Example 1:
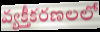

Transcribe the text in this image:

వ్యక్తీకరణలలో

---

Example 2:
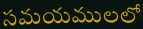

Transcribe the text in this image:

సమయములలో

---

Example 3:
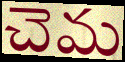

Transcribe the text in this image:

చెమ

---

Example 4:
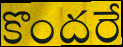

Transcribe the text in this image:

కొందరే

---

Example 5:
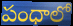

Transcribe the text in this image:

పంధాలో